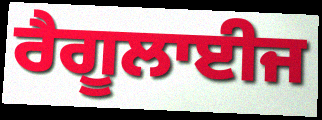
ਰੈਗੂਲਾਈਜ